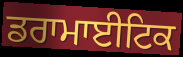
ਡਰਾਮਾਈਟਿਕ